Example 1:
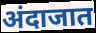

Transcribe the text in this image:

अंदाजात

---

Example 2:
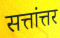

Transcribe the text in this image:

सत्तांत्तर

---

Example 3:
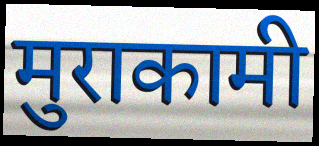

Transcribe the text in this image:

मुराकामी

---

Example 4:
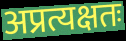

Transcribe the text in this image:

अप्रत्यक्षतः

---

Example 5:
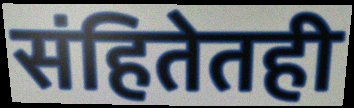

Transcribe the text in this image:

संहितेतही